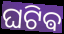
ଘଟିଵ